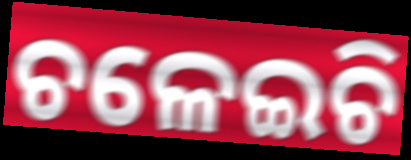
ଚଳେଇଚି